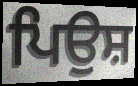
ਪਿਉਸ਼